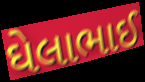
ઘેલાભાઈ